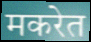
मकरेत